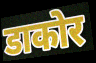
डाकोर